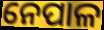
ନେପାଳ